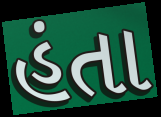
હંતા